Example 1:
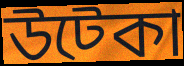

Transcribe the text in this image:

উট্কো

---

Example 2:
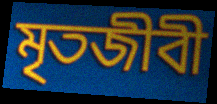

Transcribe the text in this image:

মৃতজীবী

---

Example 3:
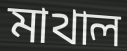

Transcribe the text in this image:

মাথাল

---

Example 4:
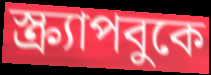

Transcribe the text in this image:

স্ক্র্যাপবুকে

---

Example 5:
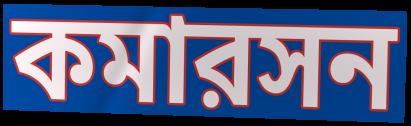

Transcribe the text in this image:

কমারসন